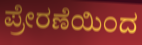
ಪ್ರೇರಣೆಯಿಂದ